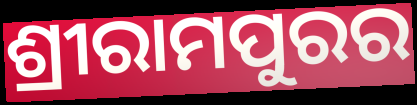
ଶ୍ରୀରାମପୁରର